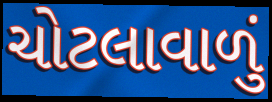
ચોટલાવાળું